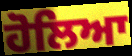
ਹੋਲਿਆ